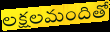
లక్షలమందితో